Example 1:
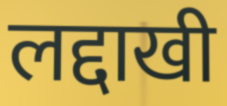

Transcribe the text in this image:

लद्दाखी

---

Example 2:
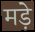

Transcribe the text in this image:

मड़े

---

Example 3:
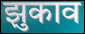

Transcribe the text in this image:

झुकाव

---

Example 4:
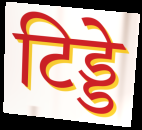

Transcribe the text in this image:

टिड्डे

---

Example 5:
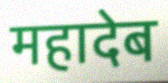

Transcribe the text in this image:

महादेब